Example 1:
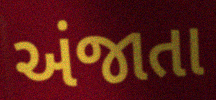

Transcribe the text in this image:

અંજાતા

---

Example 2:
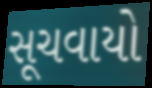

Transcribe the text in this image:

સૂચવાયો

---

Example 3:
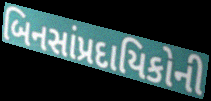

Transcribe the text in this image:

બિનસાંપ્રદાયિકોની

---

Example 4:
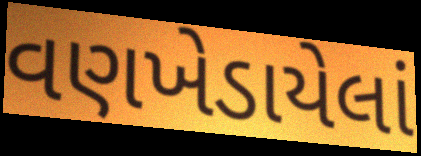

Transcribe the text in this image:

વણખેડાયેલાં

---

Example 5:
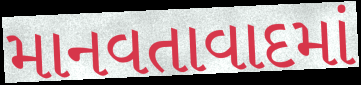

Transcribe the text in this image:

માનવતાવાદમાં